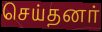
செய்தனர்